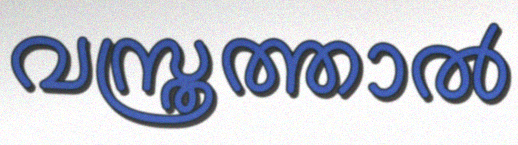
വസ്ത്രത്താൽ